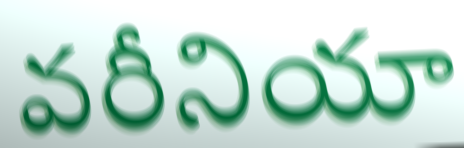
వరీనియా